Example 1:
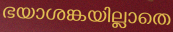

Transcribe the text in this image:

ഭയാശങ്കയില്ലാതെ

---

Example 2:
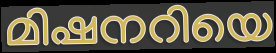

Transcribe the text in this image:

മിഷനറിയെ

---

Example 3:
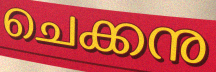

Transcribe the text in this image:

ചെക്കനു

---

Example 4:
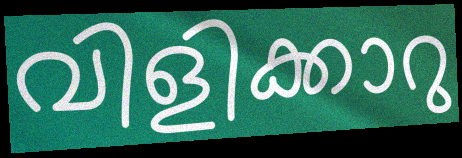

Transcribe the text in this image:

വിളിക്കാറു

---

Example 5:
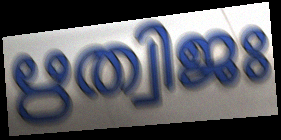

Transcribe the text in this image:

ഋത്വിജഃ